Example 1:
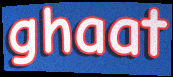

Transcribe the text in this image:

ghaat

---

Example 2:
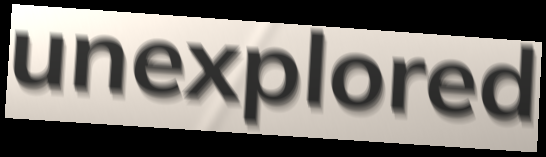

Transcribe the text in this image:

unexplored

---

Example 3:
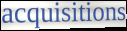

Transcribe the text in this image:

acquisitions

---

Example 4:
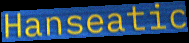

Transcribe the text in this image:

Hanseatic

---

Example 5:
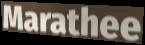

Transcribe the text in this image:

Marathee